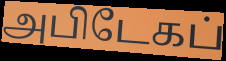
அபிடேகப்